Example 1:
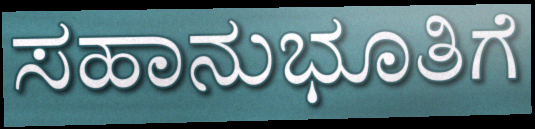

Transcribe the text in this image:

ಸಹಾನುಭೂತಿಗೆ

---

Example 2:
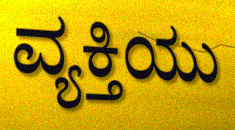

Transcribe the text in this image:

ವ್ಯಕ್ತಿಯು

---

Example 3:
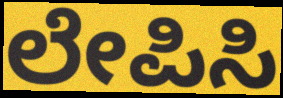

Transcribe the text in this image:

ಲೇಪಿಸಿ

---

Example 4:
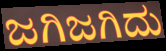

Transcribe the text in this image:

ಜಗಿಜಗಿದು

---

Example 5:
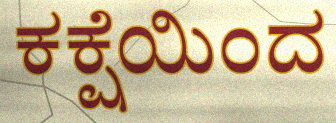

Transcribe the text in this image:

ಕಕ್ಷೆಯಿಂದ